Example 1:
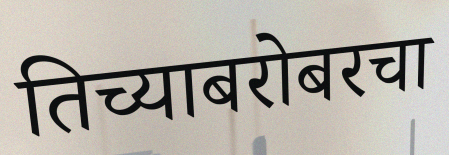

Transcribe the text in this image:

तिच्याबरोबरचा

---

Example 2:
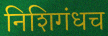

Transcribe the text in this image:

निशिगंधच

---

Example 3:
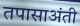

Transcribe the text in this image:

तपासाअंती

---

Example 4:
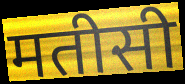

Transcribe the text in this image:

मतीसी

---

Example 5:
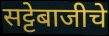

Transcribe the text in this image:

सट्टेबाजीचे